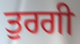
ਤੁਰਗੀ